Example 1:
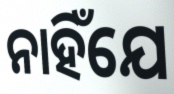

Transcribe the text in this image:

ନାହିଁଯେ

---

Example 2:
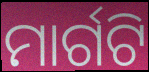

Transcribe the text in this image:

ମାର୍ଗଟି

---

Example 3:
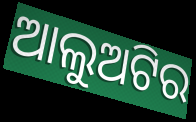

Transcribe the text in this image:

ଆଲୁଅଟିର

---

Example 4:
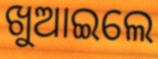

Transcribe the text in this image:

ଖୁଆଇଲେ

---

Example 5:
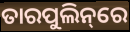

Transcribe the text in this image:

ତାରପୁଲିନ୍‌ରେ